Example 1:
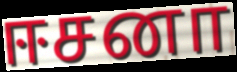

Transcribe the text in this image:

ஈசனா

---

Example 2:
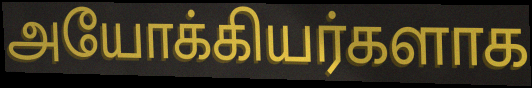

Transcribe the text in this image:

அயோக்கியர்களாக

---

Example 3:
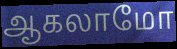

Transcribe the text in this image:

ஆகலாமோ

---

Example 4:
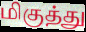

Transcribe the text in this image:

மிகுத்து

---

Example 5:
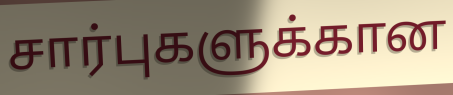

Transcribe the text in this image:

சார்புகளுக்கான